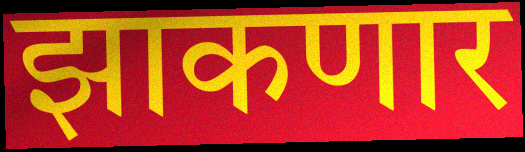
झाकणार